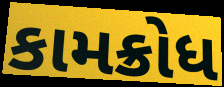
કામક્રોધ